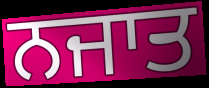
ਨਜਾਤ